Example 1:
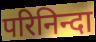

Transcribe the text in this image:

परिनिन्दा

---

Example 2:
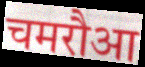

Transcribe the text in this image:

चमरौआ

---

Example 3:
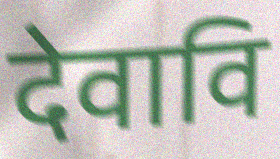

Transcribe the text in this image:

देवावि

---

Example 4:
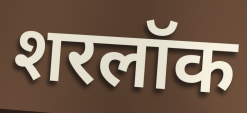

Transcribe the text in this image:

शरलॉक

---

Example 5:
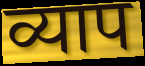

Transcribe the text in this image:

व्याप